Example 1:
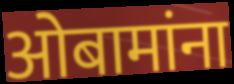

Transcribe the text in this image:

ओबामांना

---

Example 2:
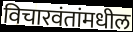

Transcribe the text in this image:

विचारवंतांमधील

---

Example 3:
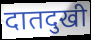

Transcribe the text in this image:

दातदुखी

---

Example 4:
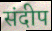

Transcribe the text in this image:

संदीप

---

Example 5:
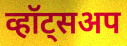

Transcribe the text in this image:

व्हॉट्सअप